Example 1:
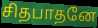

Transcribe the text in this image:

சிதபாதனே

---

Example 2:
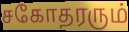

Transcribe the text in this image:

சகோதரரும்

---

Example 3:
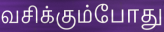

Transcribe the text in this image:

வசிக்கும்போது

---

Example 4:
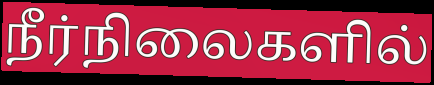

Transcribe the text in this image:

நீர்நிலைகளில்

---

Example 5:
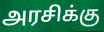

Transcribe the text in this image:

அரசிக்கு